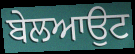
ਬੇਲਆਉਟ